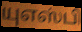
யுஎஸ்பி